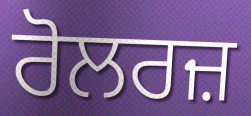
ਰੋਲਰਜ਼